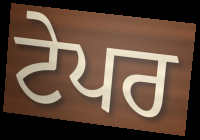
ਟੇਪਰ